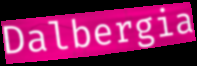
Dalbergia